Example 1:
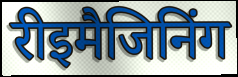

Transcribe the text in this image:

रीइमैजिनिंग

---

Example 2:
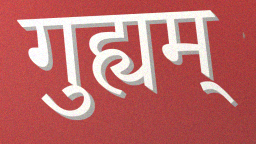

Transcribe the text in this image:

गुह्यम्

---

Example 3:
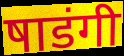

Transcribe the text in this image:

षाडंगी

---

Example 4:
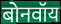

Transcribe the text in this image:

बोनवॉय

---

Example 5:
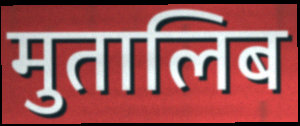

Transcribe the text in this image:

मुतालिब